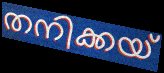
തനിക്കയ്